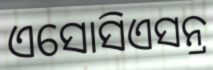
ଏସୋସିଏସନ୍ର